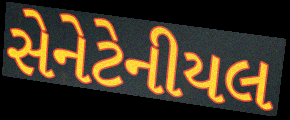
સેનેટેનીયલ